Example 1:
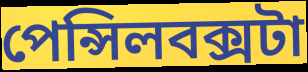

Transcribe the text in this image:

পেন্সিলবক্সটা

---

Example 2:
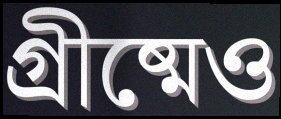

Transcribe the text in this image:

গ্রীষ্মেও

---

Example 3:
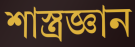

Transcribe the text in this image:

শাস্ত্রজ্ঞান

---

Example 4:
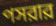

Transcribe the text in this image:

পসরার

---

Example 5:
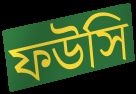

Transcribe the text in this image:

ফউসি